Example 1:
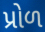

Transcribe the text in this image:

પ્રોળ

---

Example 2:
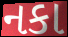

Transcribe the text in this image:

નકા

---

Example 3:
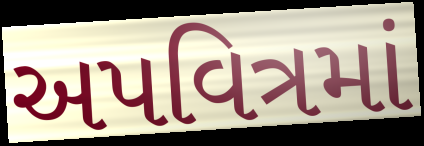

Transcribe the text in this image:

અપવિત્રમાં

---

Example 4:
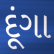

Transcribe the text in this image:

દૂંગા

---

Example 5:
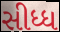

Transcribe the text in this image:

સીધ્ધ